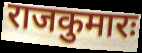
राजकुमारः